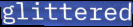
glittered